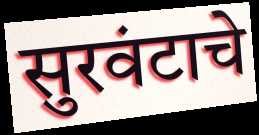
सुरवंटाचे